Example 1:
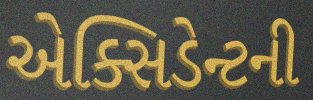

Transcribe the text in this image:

એક્સિડેન્ટની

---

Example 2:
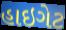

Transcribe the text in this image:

હાઇગેટ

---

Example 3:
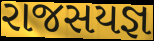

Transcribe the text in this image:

રાજસયજ્ઞ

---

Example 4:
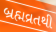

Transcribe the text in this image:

બ્રહ્મવ્રતથી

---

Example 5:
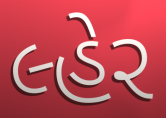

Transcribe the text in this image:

લ્હેર